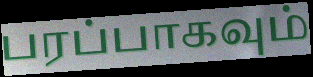
பரப்பாகவும்